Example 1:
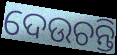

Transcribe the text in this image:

ଦେଉଚନ୍ତି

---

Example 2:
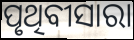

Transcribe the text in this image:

ପୃଥିବୀସାରା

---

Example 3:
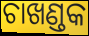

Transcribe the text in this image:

ଚାଖଣ୍ଡକ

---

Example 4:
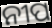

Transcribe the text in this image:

ନୀପ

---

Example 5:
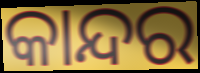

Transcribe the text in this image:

କାନ୍ଦର